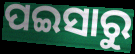
ପଇସାରୁ